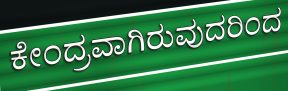
ಕೇಂದ್ರವಾಗಿರುವುದರಿಂದ